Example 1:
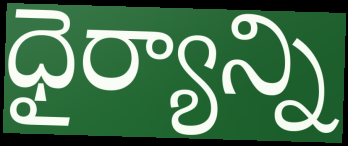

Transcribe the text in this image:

ధైర్యాన్ని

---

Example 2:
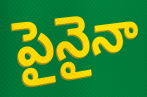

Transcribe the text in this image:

పైనైనా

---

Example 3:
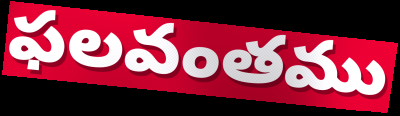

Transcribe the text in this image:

ఫలవంతము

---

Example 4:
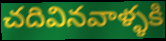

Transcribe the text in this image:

చదివినవాళ్ళకి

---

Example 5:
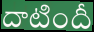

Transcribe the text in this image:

దాటిందీ